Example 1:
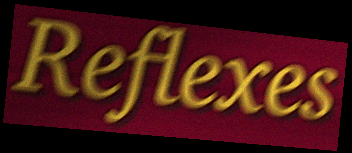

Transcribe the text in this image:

Reflexes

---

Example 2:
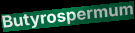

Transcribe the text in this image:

Butyrospermum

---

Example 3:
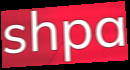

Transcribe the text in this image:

shpa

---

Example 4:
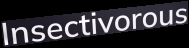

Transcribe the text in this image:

Insectivorous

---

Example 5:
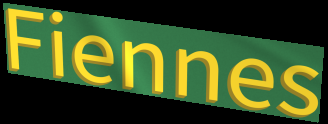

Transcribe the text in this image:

Fiennes